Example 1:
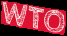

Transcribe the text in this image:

WTO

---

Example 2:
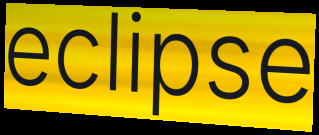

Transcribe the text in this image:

eclipse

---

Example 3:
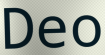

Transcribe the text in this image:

Deo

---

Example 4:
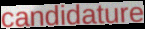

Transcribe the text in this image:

candidature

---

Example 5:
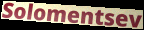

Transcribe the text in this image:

Solomentsev